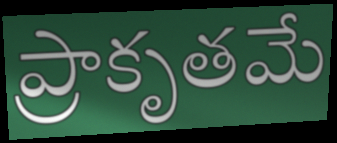
ప్రాకృతమే